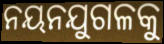
ନୟନଯୁଗଳକୁ